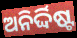
ଅନିର୍ଦ୍ଦିଷ୍ଟ